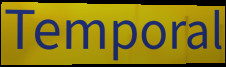
Temporal